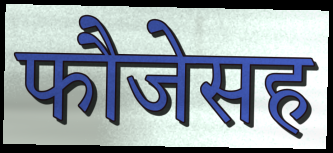
फौजेसह